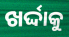
ଖର୍ଦ୍ଦାକୁ